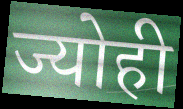
ज्योही